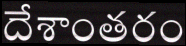
దేశాంతరం